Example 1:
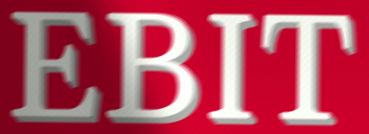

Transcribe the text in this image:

EBIT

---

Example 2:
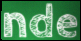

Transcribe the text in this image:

nde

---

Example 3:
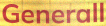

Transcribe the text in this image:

Generall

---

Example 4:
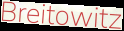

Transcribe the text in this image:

Breitowitz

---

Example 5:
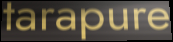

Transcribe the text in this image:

tarapure